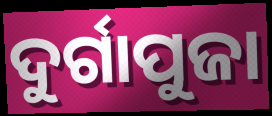
ଦୁର୍ଗାପୁଜା